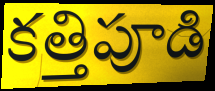
కత్తిపూడి